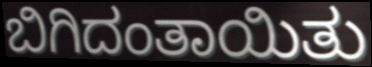
ಬಿಗಿದಂತಾಯಿತು